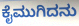
ಕೈಮುಗಿದನು